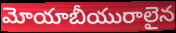
మోయాబీయురాలైన